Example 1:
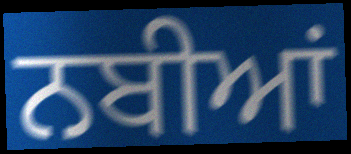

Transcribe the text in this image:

ਨਬੀਆਂ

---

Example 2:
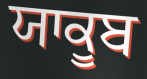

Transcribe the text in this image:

ਯਾਕੂਬ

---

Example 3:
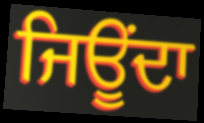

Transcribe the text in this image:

ਜਿਊਂਦਾ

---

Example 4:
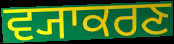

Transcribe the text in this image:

ਵ੍ਯਾਕਰਣ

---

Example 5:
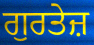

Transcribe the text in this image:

ਗੁਰਤੇਜ਼